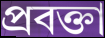
প্ৰবক্তা